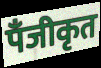
पँजीकृत